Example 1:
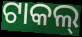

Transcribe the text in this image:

ଟାକଲ୍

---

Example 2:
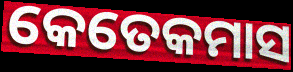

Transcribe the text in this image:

କେତେକମାସ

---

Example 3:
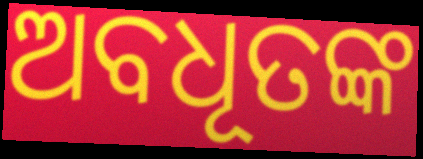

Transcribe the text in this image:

ଅବଧୂତଙ୍କ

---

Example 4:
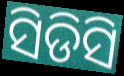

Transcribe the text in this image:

ସିଡିସି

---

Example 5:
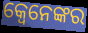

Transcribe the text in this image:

କ୍ବେନେଙ୍କର